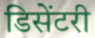
डिसेंटरी